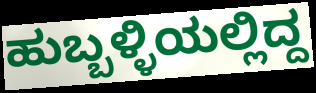
ಹುಬ್ಬಳ್ಳಿಯಲ್ಲಿದ್ದ